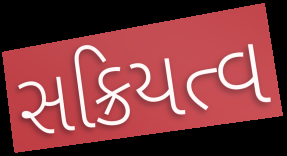
સક્રિયત્વ